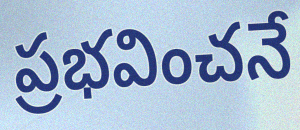
ప్రభవించనే